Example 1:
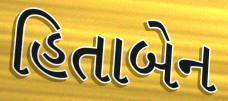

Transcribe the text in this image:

હિતાબેન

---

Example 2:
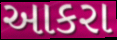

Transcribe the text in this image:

આકરા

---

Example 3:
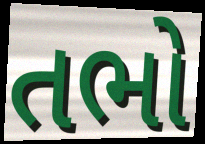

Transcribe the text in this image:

તભો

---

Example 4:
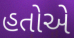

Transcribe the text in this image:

હતોએ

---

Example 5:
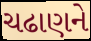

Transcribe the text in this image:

ચઢાણને